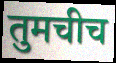
तुमचीच